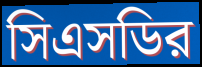
সিএসডির